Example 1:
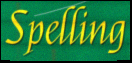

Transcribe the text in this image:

Spelling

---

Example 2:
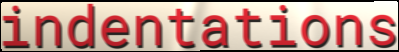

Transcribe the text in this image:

indentations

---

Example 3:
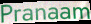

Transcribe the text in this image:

Pranaam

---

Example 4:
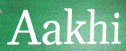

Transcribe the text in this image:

Aakhi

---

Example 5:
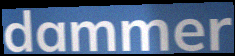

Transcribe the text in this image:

dammer